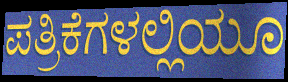
ಪತ್ರಿಕೆಗಳಲ್ಲಿಯೂ